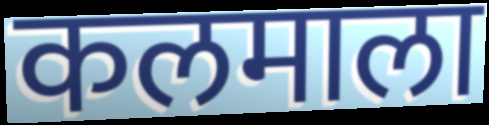
कलमाला